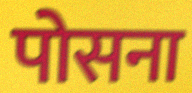
पोसना